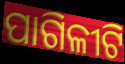
ପାଗିଳୀଟି